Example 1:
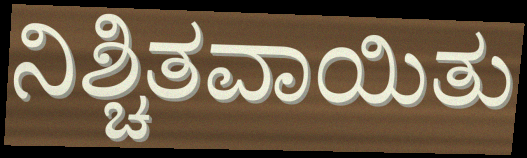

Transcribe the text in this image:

ನಿಶ್ಚಿತವಾಯಿತು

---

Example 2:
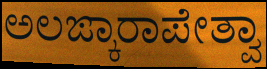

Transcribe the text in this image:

ಅಲಙ್ಕಾರಾಪೇತ್ವಾ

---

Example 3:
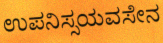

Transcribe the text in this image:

ಉಪನಿಸ್ಸಯವಸೇನ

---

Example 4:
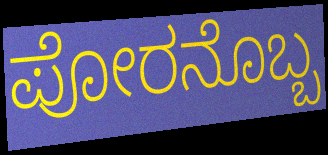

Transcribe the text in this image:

ಪೋರನೊಬ್ಬ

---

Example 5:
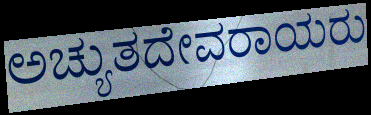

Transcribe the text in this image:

ಅಚ್ಯುತದೇವರಾಯರು